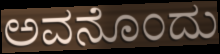
ಅವನೊಂದು